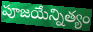
పూజయేన్నిత్యం